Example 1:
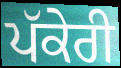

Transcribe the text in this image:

ਪੱਕੇਰੀ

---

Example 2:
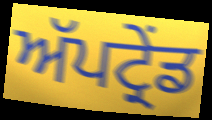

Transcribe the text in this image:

ਅੱਪਟ੍ਰੇਂਡ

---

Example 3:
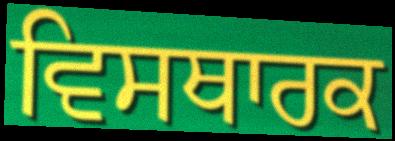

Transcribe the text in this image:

ਵਿਸਥਾਰਕ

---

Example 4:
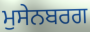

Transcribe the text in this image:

ਮੁਸੇਨਬਰਗ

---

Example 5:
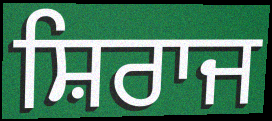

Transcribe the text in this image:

ਸ਼ਿਰਾਜ